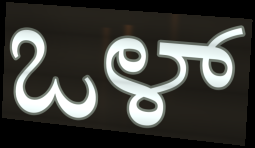
ಒಳ್